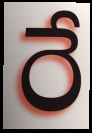
రే